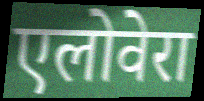
एलोवेरा